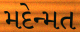
મદેન્મત